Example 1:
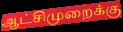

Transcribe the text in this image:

ஆட்சிமுறைக்கு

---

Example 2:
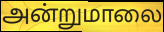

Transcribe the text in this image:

அன்றுமாலை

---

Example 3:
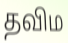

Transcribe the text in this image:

தவிம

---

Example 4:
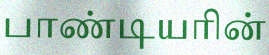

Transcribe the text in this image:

பாண்டியரின்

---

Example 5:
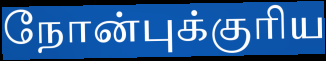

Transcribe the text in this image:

நோன்புக்குரிய